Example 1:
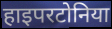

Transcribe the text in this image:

हाइपरटोनिया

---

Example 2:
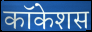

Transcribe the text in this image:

कॉकेशस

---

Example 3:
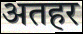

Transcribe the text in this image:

अतहर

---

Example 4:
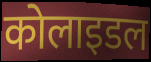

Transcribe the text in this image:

कोलाइडल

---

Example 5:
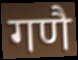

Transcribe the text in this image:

गणै